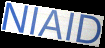
NIAID